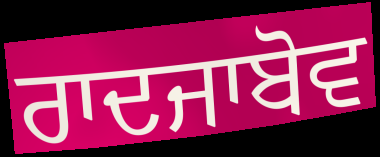
ਰਾਦਜਾਬੋਵ